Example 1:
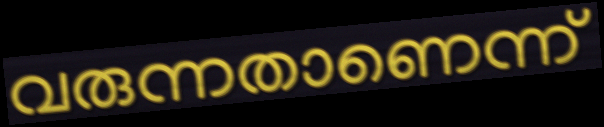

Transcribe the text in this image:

വരുന്നതാണെന്ന്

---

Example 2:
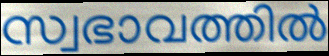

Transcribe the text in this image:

സ്വഭാവത്തിൽ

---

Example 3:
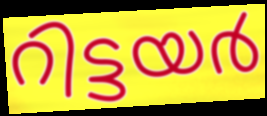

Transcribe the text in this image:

റിട്ടയർ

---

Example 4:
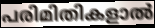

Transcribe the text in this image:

പരിമിതികളാൽ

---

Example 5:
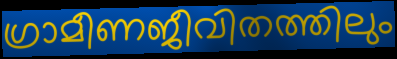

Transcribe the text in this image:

ഗ്രാമീണജീവിതത്തിലും